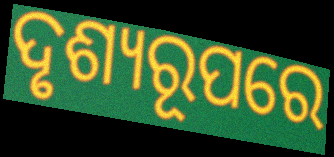
ଦୃଶ୍ୟରୂପରେ